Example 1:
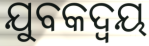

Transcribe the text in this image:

ଯୁବକଦ୍ୱୟ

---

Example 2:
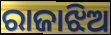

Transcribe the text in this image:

ରାଜାଝିଅ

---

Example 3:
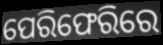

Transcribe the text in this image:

ପେରିଫେରିରେ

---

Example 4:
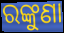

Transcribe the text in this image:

ରଙ୍କୁଣା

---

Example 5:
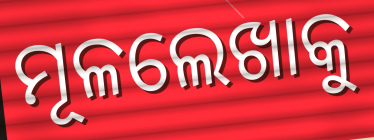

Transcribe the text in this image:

ମୂଳଲେଖାକୁ